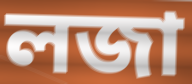
লজা